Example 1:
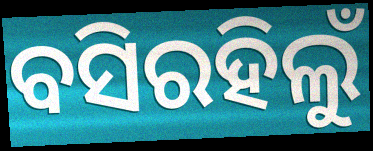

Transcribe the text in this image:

ବସିରହିଲୁଁ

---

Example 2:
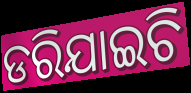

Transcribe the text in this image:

ଡରିଯାଇଚି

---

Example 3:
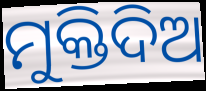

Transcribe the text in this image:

ମୁକ୍ତିଦିଅ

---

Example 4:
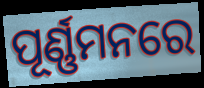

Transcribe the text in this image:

ପୂର୍ଣ୍ଣମନରେ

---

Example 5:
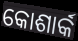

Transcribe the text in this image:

କୋଶାର୍କ